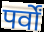
पर्वों